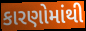
કારણોમાંથી